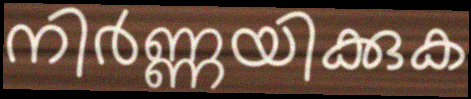
നിർണ്ണയിക്കുക